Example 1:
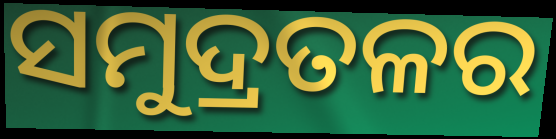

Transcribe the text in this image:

ସମୁଦ୍ରତଳର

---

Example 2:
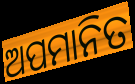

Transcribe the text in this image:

ଅପମାନିତ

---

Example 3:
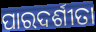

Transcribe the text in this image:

ପାରଦର୍ଶୀତା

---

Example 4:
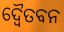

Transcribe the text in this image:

ଦ୍ୱୈତବନ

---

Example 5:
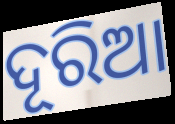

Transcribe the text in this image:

ଦୂରିଆ